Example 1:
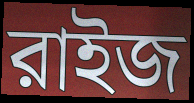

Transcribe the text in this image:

রাইজ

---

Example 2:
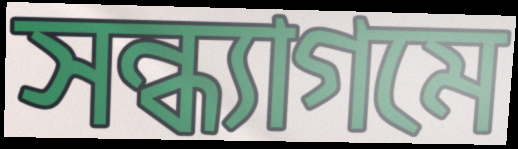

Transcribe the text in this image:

সন্ধ্যাগমে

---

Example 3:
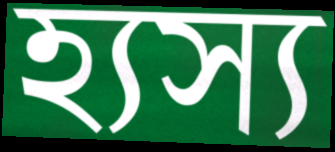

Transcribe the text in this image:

হ্যস্য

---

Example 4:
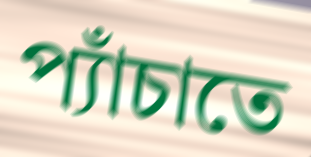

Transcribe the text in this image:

প্যাঁচাতে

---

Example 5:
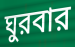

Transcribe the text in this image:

ঘুরবার